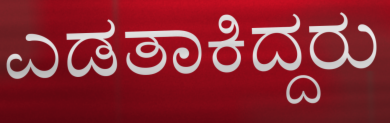
ಎಡತಾಕಿದ್ದರು